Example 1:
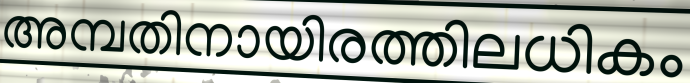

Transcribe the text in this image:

അമ്പതിനായിരത്തിലധികം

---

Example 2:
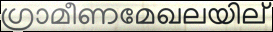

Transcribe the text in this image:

ഗ്രാമീണമേഖലയില്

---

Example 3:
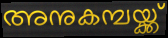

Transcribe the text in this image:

അനുകമ്പയ്ക്ക്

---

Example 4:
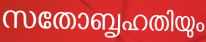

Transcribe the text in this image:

സതോബൃഹതിയും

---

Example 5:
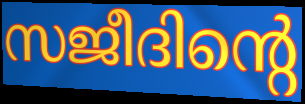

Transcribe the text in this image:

സജീദിന്റെ